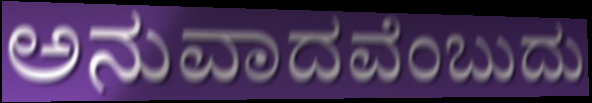
ಅನುವಾದವೆಂಬುದು